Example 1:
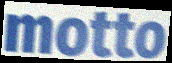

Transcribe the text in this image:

motto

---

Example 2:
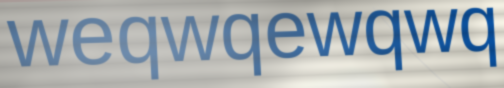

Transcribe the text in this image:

weqwqewqwq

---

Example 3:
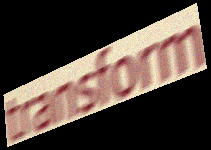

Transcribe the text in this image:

transform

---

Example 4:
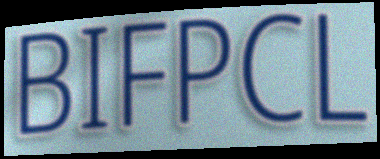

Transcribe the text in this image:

BIFPCL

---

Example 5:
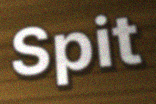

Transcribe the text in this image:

Spit